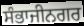
ਸੰਭਾਜੀਨਗਰ